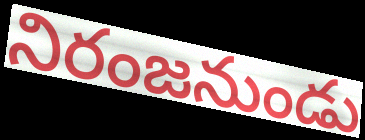
నిరంజనుండు